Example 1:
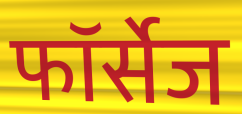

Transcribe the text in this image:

फॉर्सेज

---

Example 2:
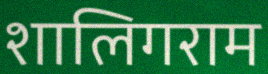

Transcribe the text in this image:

शालिगराम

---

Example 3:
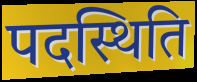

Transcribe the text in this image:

पदस्थिति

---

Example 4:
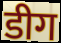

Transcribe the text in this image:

डीग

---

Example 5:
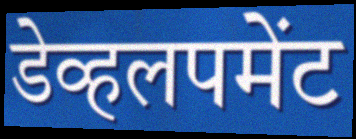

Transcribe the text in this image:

डेव्हलपमेंट